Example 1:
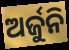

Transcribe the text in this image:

ଅର୍ଜୁନି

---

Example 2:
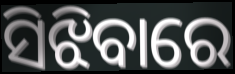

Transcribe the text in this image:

ସିଝିବାରେ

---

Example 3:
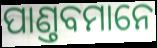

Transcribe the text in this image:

ପାଣ୍ତବମାନେ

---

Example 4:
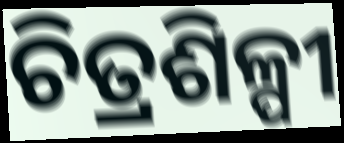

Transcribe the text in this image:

ଚିତ୍ରଶିଳ୍ପୀ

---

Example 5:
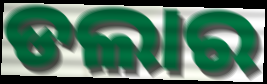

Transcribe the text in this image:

ଡଲାର